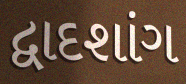
દ્વાદશાંગ